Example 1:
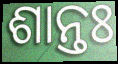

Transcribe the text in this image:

ଶାନ୍ତଃ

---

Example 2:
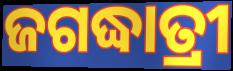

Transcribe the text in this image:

ଜଗଦ୍ଧାତ୍ରୀ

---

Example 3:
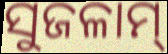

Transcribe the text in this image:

ସୁଜଳାମ୍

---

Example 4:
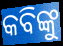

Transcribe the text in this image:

କବିଙ୍କୁ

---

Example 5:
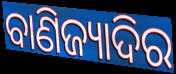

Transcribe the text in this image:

ବାଣିଜ୍ୟାଦିର